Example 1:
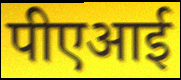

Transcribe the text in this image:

पीएआई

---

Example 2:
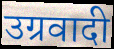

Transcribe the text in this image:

उग्रवादी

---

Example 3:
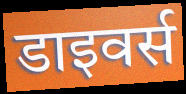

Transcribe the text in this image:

डाइवर्स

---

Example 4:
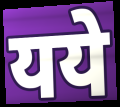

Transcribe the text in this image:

यये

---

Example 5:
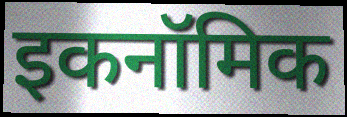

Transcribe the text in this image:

इकनॉमिक